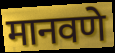
मानवणे